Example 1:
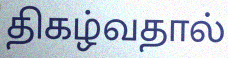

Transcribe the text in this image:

திகழ்வதால்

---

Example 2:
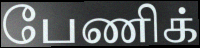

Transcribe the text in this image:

பேணிக்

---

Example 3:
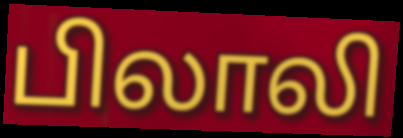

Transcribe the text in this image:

பிலாலி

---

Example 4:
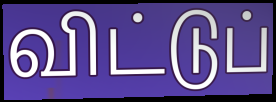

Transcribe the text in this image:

விட்டுப்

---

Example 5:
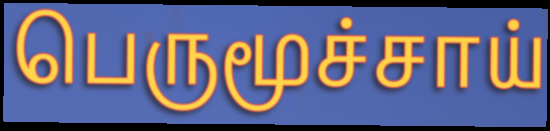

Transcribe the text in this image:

பெருமூச்சாய்